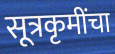
सूत्रकृमींचा